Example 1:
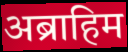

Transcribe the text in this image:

अब्राहिम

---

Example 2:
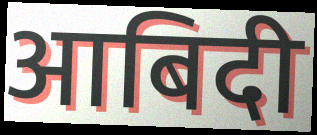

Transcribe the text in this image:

आबिदी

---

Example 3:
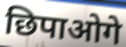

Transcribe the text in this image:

छिपाओगे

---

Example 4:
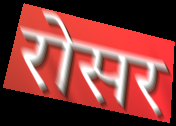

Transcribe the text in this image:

रोसर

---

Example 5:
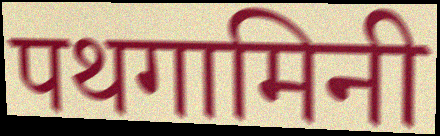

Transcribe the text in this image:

पथगामिनी